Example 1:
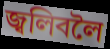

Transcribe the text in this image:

জ্বলিবলৈ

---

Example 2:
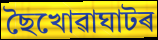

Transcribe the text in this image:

ছৈখোৱাঘাটৰ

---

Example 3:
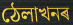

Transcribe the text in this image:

ঠেলাখনৰ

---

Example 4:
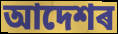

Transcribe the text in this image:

আদেশৰ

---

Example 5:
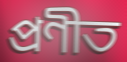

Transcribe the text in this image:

প্ৰণীত